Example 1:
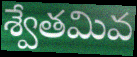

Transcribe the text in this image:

శ్వేతమివ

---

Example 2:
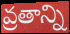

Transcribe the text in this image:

వ్రతాన్ని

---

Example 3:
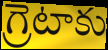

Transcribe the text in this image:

గ్రెటాకు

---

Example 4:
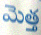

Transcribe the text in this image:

మెత్త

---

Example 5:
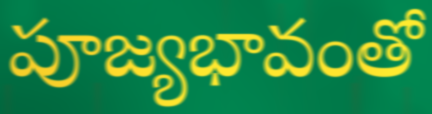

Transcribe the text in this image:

పూజ్యభావంతో